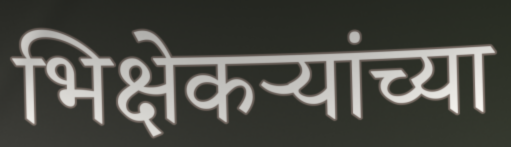
भिक्षेकऱ्यांच्या